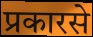
प्रकारसे